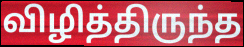
விழித்திருந்த